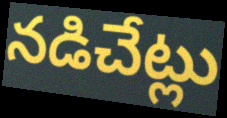
నడిచేట్లు